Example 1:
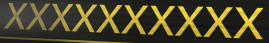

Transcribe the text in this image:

xxxxxxxxxx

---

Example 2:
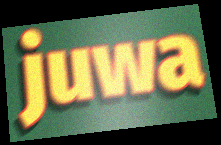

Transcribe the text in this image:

juwa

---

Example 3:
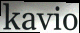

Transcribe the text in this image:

kavio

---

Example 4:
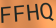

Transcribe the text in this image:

FFHQ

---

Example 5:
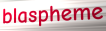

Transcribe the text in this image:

blaspheme